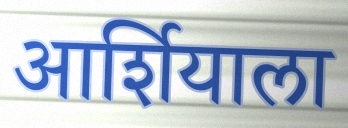
आर्शियाला